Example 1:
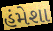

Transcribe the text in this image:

હંમેશા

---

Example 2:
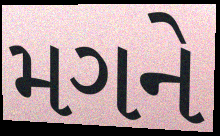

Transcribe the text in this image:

મગને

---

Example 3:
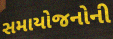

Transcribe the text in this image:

સમાયોજનોની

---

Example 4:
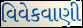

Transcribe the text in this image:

વિવેકવાણી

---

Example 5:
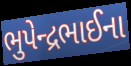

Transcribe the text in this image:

ભુપેન્દ્રભાઈના